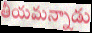
తీయమన్నాడు